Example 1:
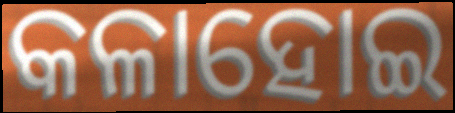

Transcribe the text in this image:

କଳାହୋଇ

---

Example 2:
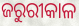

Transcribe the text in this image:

ଜରୁରୀକାଳ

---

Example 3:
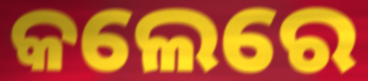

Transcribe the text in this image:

କଲେରେ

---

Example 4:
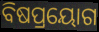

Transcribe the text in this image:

ବିଷପ୍ରୟୋଗ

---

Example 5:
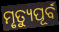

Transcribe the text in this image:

ମୃତ୍ୟୁପୂର୍ବ